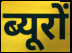
ब्यूरों